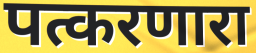
पत्करणारा